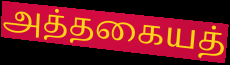
அத்தகையத்